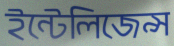
ইন্টেলিজেন্স